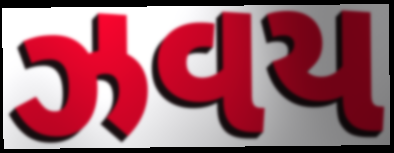
ઝવય